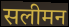
सलीमन